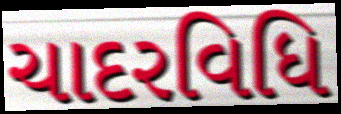
ચાદરવિધિ